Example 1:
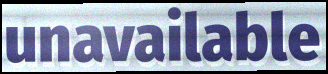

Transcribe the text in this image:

unavailable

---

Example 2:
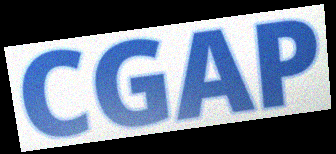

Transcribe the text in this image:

CGAP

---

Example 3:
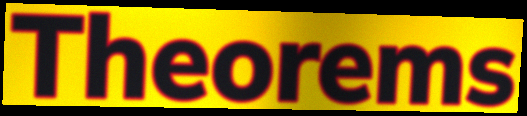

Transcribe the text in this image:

Theorems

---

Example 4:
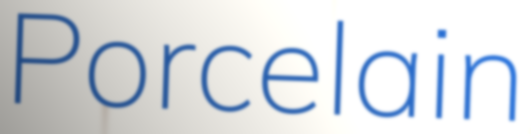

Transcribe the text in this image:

Porcelain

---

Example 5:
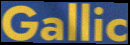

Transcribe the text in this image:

Gallic